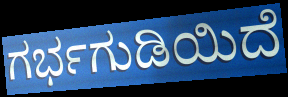
ಗರ್ಭಗುಡಿಯಿದೆ